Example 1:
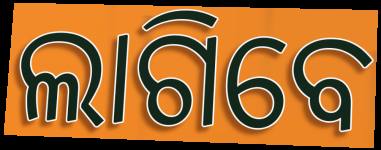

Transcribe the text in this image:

ଲାଗିବେ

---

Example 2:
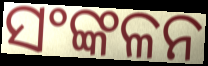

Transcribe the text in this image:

ସଂଙ୍କଳନ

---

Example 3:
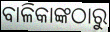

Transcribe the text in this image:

ବାଳିକାଙ୍କଠାରୁ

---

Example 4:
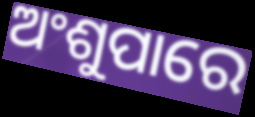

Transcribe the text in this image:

ଅଂଶୁପାରେ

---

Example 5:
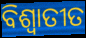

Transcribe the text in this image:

ବିଶ୍ଵାତୀତ